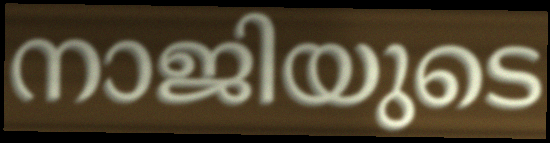
നാജിയുടെ